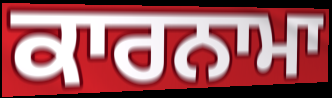
ਕਾਰਨਾਮਾ